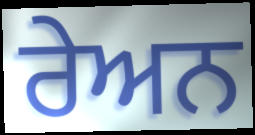
ਰੇਅਨ